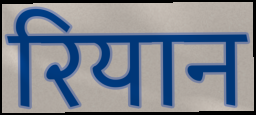
रियान